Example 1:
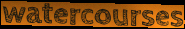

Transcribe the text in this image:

watercourses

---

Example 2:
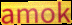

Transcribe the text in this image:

amok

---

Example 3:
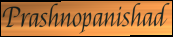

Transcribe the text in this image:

Prashnopanishad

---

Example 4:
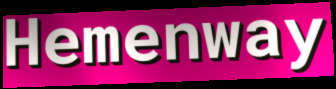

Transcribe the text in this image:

Hemenway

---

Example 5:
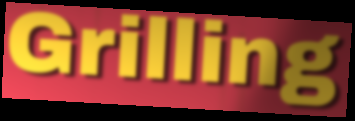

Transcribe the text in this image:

Grilling